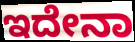
ಇದೇನಾ